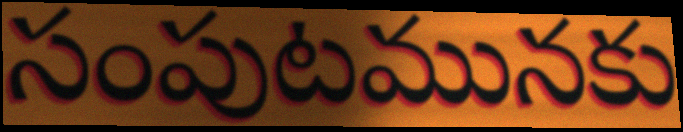
సంపుటమునకు